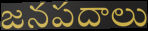
జనపదాలు